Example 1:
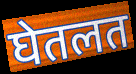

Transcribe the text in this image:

घेतलत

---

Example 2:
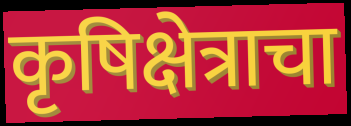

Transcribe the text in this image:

कृषिक्षेत्राचा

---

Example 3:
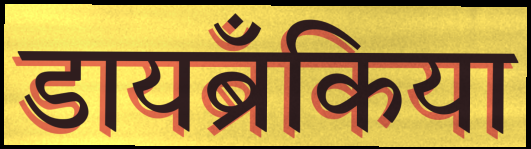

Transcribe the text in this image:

डायब्रँकिया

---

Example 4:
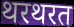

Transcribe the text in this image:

थरथरत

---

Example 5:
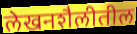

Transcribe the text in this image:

लेखनशैलीतील